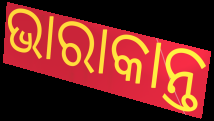
ଭାରାକାନ୍ତ